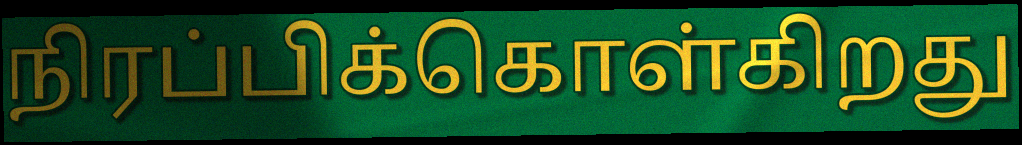
நிரப்பிக்கொள்கிறது